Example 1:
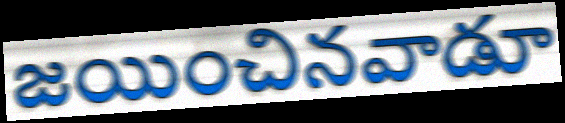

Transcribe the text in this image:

జయించినవాడూ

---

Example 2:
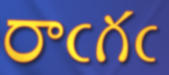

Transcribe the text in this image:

రాఁగఁ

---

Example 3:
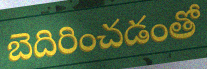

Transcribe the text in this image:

బెదిరించడంతో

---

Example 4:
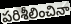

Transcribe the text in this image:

పరిశీలించినా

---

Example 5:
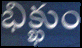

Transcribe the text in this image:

భిక్ఖుం